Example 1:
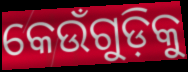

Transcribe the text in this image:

କେଉଁଗୁଡ଼ିକୁ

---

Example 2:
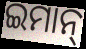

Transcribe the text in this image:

ଇମାନ୍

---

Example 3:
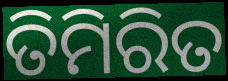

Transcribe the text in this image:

ତିମିରିତ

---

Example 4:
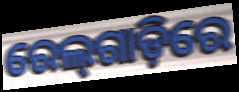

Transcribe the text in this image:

ରେଲ୍‌ଗାଡ଼ିରେ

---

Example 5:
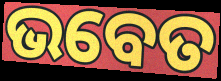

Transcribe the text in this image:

ଭବେତ